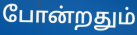
போன்றதும்